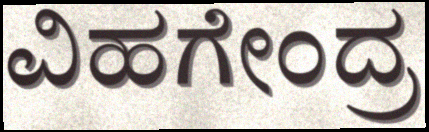
ವಿಹಗೇಂದ್ರ